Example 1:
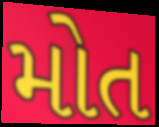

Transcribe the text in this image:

મોત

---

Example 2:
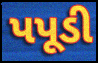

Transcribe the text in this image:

પપૂડી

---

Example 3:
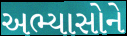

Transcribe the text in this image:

અભ્યાસોને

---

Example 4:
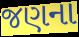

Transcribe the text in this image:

જણના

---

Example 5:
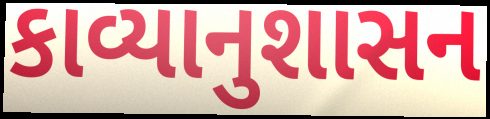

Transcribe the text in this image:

કાવ્યાનુશાસન